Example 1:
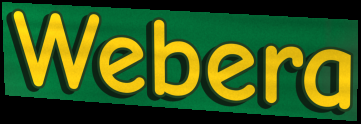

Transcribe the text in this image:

Webera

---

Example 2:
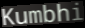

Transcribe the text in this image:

Kumbhi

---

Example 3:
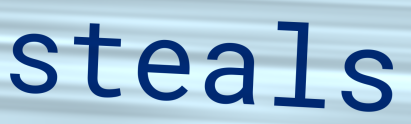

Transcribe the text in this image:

steals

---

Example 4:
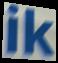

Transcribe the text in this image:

ik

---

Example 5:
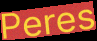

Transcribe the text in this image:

Peres